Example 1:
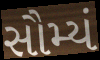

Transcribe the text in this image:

સૌમ્યં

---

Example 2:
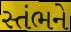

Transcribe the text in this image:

સ્તંભને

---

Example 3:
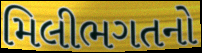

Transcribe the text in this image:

મિલીભગતનો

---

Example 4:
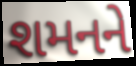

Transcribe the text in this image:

શમનને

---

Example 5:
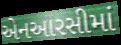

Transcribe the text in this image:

એનઆરસીમાં